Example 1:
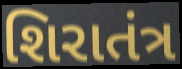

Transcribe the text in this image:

શિરાતંત્ર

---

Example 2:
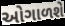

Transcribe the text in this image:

ઓગાળશે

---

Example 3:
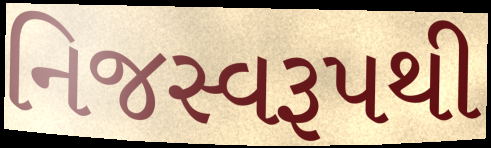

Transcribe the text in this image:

નિજસ્વરૂપથી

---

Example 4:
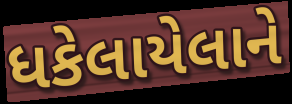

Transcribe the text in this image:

ધકેલાયેલાને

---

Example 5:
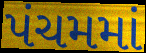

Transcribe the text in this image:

પંચમમાં